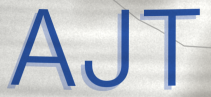
AJT